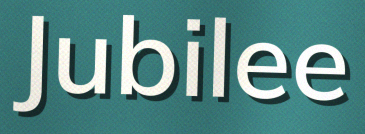
Jubilee